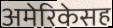
अमेरिकेसह